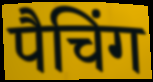
पैचिंग